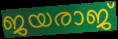
ജയരാജ്